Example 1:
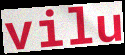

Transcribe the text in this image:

vilu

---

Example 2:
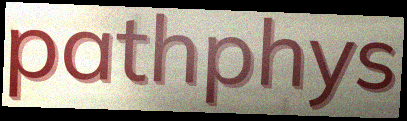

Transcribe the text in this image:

pathphys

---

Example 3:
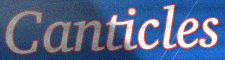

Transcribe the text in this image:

Canticles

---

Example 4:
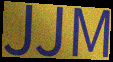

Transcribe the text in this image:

JJM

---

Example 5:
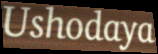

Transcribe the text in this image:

Ushodaya